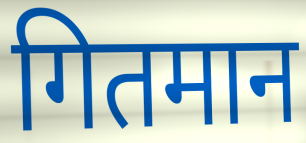
गितमान